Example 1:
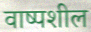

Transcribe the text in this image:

वाष्पशील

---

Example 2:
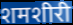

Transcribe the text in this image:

शमशीरी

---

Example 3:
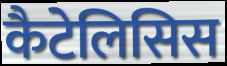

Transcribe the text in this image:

कैटेलिसिस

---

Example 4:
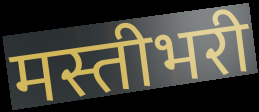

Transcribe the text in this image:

मस्तीभरी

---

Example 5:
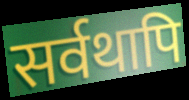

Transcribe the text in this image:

सर्वथापि